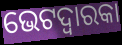
ଭେଟଦ୍ୱାରକା